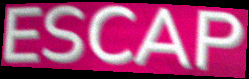
ESCAP